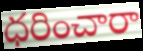
ధరించారా